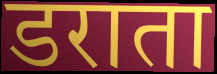
डराता